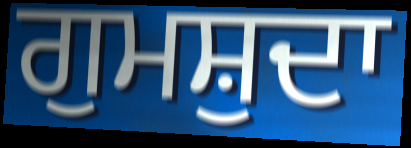
ਗੁਮਸ਼ੁਦਾ